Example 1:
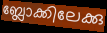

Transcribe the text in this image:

ബ്ലോക്കിലേക്കു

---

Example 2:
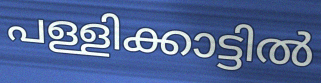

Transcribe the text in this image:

പള്ളിക്കാട്ടിൽ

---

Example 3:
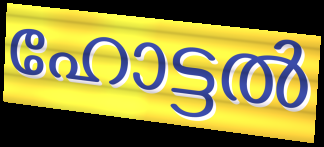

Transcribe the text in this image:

ഹോട്ടൽ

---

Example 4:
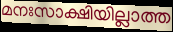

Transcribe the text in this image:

മനഃസാക്ഷിയില്ലാത്ത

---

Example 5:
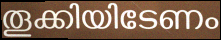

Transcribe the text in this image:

തൂക്കിയിടേണം